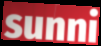
sunni